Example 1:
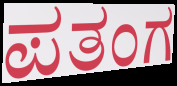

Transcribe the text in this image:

ಪತಂಗ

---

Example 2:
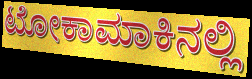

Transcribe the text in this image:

ಟೋಕಾಮಾಕಿನಲ್ಲಿ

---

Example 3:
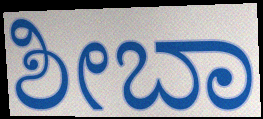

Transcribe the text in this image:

ಶೀಬಾ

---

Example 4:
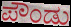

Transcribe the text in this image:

ಪೌಂಡು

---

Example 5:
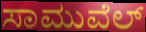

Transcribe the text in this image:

ಸಾಮುವೆಲ್